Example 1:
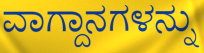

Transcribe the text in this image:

ವಾಗ್ದಾನಗಳನ್ನು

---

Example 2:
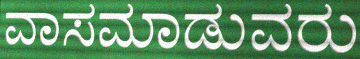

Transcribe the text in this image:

ವಾಸಮಾಡುವರು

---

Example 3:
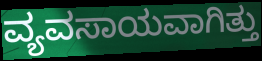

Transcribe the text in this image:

ವ್ಯವಸಾಯವಾಗಿತ್ತು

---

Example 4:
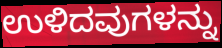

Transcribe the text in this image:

ಉಳಿದವುಗಳನ್ನು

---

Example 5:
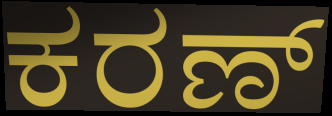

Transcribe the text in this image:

ಕರಣ್